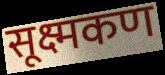
सूक्ष्मकण